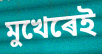
মুখেৰেই